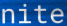
nite